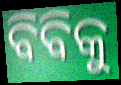
ବିବିକୁ